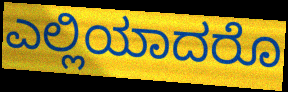
ಎಲ್ಲಿಯಾದರೊ